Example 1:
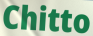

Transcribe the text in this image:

Chitto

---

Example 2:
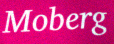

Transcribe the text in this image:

Moberg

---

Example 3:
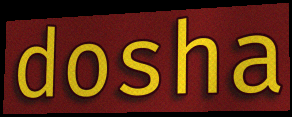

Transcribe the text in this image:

dosha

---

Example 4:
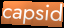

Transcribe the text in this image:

capsid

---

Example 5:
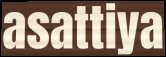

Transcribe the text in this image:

asattiya